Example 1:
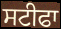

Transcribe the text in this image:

ਸਟੀਫਾ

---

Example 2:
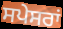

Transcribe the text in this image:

ਸਪੇਸਰਾਂ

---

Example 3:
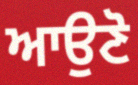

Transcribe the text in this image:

ਆਉਣੋ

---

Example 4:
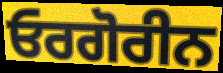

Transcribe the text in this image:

ਓਰਗੋਰੀਨ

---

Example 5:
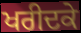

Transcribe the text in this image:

ਖਰੀਦਕੇ